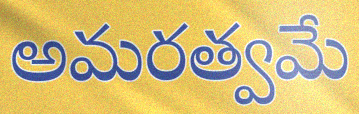
అమరత్వమే